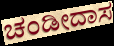
ಚಂಡೀದಾಸ